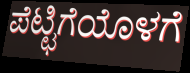
ಪೆಟ್ಟಿಗೆಯೊಳಗೆ